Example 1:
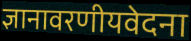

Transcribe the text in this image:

ज्ञानावरणीयवेदना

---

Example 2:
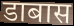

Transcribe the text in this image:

डाबास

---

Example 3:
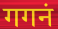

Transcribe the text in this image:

गगनं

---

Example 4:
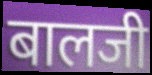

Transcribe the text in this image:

बालजी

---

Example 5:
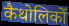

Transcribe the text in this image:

कैथोलिकों